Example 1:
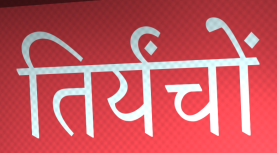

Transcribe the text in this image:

तिर्यंचों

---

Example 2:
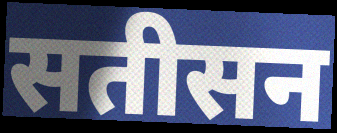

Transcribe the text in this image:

सतीसन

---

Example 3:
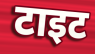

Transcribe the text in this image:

टाइट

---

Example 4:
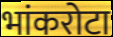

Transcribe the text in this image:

भांकरोटा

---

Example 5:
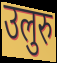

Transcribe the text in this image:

उलुरु